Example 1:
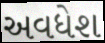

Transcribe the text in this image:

અવધેશ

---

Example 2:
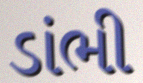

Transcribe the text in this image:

ડાંભી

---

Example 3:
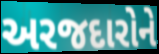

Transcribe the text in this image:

અરજદારોને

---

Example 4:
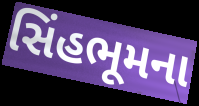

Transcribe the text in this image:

સિંહભૂમના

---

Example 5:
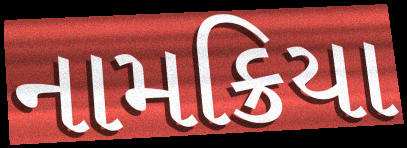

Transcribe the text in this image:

નામક્રિયા